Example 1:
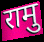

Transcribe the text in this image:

रामु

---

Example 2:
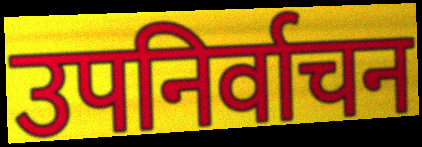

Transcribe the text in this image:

उपनिर्वाचन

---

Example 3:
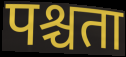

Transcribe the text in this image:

पश्चता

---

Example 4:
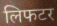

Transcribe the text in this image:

लिफटर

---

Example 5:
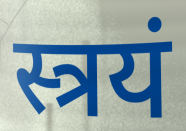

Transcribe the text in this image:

स्त्रयं